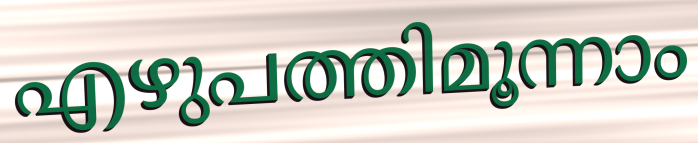
എഴുപത്തിമൂന്നാം